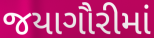
જયાગૌરીમાં